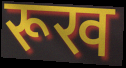
रूख